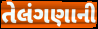
તેલંગણાની